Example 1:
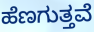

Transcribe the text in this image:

ಹೆಣಗುತ್ತವೆ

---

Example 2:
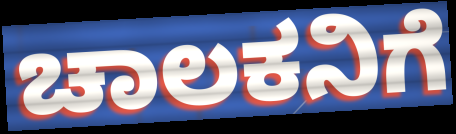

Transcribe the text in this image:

ಚಾಲಕನಿಗೆ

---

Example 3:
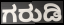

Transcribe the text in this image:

ಗರುಡಿ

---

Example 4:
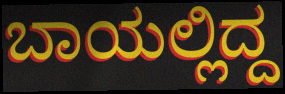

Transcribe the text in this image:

ಬಾಯಲ್ಲಿದ್ದ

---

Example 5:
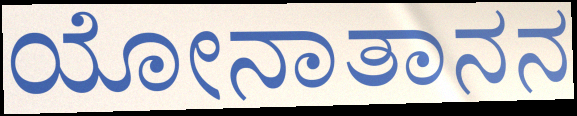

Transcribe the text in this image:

ಯೋನಾತಾನನ